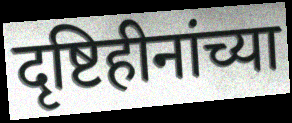
दृष्टिहीनांच्या